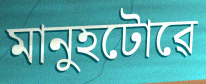
মানুহটোৱে